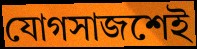
যোগসাজশেই